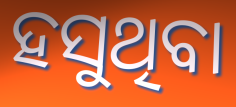
ହସୁଥିବା